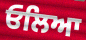
ਓਲਿਆ